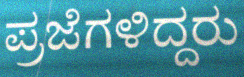
ಪ್ರಜೆಗಳಿದ್ದರು